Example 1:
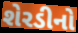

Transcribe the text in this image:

શેરડીનો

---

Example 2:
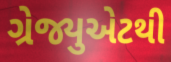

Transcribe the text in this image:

ગ્રેજ્યુએટથી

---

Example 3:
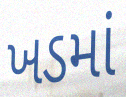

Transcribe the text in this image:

ખડમાં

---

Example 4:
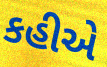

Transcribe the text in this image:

કહીએ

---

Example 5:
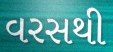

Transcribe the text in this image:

વરસથી